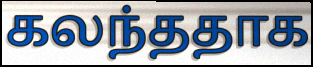
கலந்ததாக